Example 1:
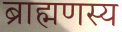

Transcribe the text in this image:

ब्राह्मणस्य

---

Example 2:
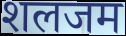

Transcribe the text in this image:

शलजम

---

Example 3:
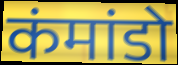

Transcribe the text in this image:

कंमांडो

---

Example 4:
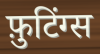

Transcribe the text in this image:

फ़ुटिंग्स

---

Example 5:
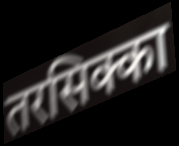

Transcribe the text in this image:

तरसिक्का